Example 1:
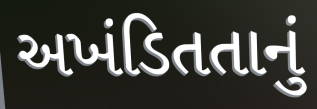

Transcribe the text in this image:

અખંડિતતાનું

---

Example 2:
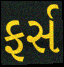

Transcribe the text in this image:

ફર્સ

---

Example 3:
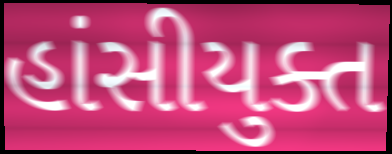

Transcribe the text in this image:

હાંસીયુક્ત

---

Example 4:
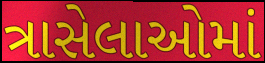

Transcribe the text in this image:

ત્રાસેલાઓમાં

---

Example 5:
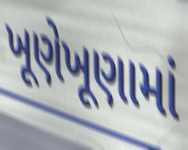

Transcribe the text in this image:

ખૂણેખૂણામાં